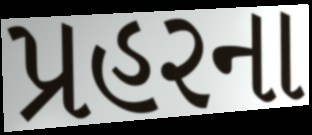
પ્રહરના